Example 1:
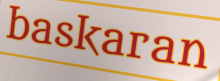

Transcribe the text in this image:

baskaran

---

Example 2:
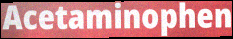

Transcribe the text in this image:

Acetaminophen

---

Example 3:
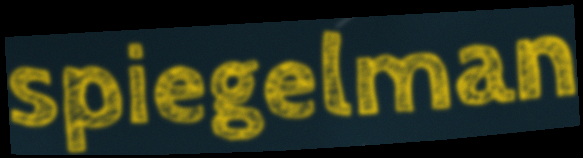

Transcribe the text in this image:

spiegelman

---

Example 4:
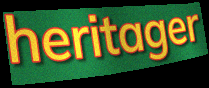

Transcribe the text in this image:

heritager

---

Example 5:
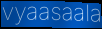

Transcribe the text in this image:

vyaasaala